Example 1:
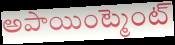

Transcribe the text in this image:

అపాయింట్మెంట్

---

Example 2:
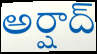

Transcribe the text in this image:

అర్షాద్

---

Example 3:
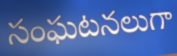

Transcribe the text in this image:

సంఘటనలుగా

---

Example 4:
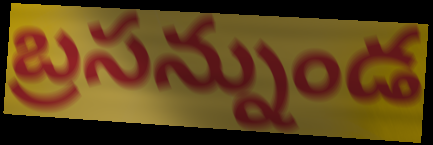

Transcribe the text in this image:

బ్రసన్నుండ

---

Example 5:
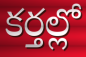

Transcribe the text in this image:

కర్తల్లో